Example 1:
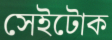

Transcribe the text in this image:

সেইটোক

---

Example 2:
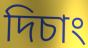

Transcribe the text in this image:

দিচাং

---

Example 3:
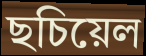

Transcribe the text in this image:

ছচিয়েল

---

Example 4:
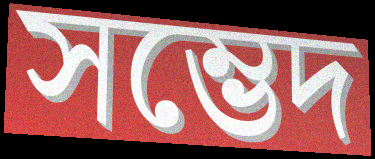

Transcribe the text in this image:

সম্ভেদ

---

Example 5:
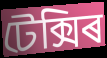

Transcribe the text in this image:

টেক্সিৰ